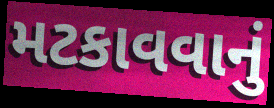
મટકાવવાનું